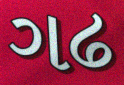
ગઢ